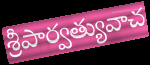
శ్రీపార్వత్యువాచ